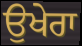
ਉਖੇਰਾ